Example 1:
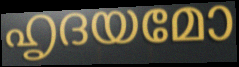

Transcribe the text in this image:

ഹൃദയമോ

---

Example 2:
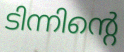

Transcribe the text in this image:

ടിന്നിന്റെ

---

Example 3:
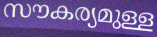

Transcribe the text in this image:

സൗകര്യമുള്ള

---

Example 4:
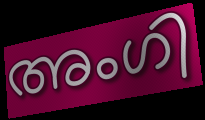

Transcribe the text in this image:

അംഗി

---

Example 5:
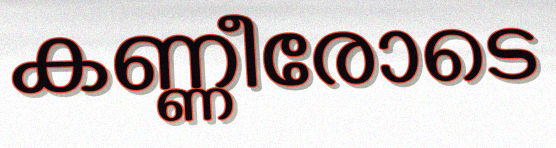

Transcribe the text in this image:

കണ്ണീരോടെ